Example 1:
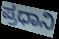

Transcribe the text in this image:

ಪ್ರಧಾನಿ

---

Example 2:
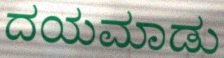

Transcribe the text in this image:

ದಯಮಾಡು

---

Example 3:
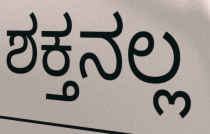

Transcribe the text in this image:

ಶಕ್ತನಲ್ಲ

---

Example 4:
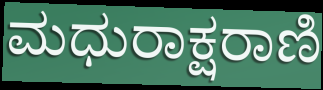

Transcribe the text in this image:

ಮಧುರಾಕ್ಷರಾಣಿ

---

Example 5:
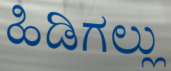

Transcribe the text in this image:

ಹಿಡಿಗಲ್ಲು